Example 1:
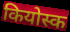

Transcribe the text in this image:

कियोस्क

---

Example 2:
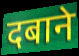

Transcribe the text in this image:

दबाने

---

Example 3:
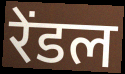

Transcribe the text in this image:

रेंडल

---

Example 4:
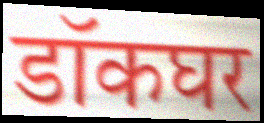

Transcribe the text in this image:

डॉकघर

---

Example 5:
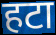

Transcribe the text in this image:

हटा